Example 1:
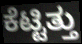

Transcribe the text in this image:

ಕೆಟ್ಟಿತ್ತು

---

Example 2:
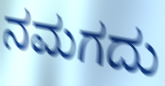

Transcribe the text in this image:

ನಮಗದು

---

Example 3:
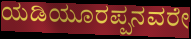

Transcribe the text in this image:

ಯಡಿಯೂರಪ್ಪನವರೇ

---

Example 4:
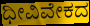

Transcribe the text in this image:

ಧೀವಿವೇಕದ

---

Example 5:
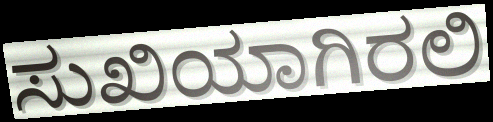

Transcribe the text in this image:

ಸುಖಿಯಾಗಿರಲಿ